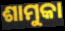
ଶାମୁକା